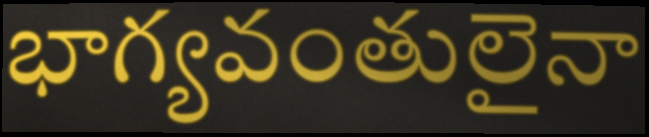
భాగ్యవంతులైనా